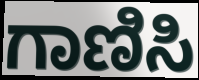
ಗಾಣಿಸಿ